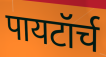
पायटॉर्च